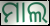
ମାଲ